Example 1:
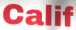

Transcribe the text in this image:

Calif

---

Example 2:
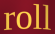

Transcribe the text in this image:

roll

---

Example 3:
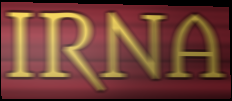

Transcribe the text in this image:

IRNA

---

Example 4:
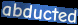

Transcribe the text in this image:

abducted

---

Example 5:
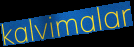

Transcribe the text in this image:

kalvimalar